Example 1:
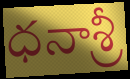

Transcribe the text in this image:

ధనాశ్రీ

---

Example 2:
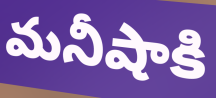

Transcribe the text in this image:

మనీషాకి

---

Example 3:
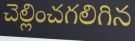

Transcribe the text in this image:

చెల్లించగలిగిన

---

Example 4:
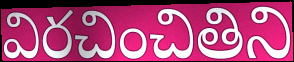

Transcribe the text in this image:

విరచించితిని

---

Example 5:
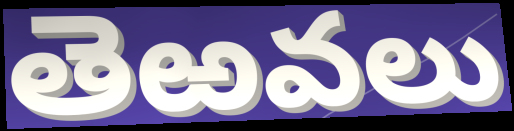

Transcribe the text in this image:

తెఱవలు